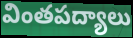
వింతపద్యాలు